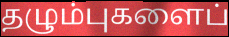
தழும்புகளைப்